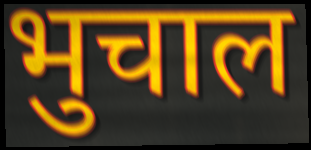
भुचाल